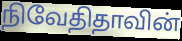
நிவேதிதாவின்